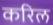
करिल